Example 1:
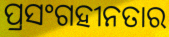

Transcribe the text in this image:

ପ୍ରସଂଗହୀନତାର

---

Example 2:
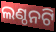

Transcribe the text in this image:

ଲଣ୍ଠନଟି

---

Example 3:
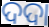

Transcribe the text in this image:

ଦଦା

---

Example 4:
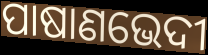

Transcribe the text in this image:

ପାଷାଣଭେଦୀ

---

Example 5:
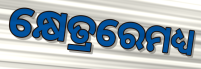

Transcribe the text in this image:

କ୍ଷେତ୍ରରେମଧ୍ୟ